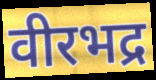
वीरभद्र